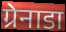
ग्रेनाडा